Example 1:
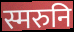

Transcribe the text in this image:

स्मरुनि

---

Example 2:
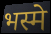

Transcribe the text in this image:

भस्मे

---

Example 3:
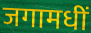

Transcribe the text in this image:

जगामधीं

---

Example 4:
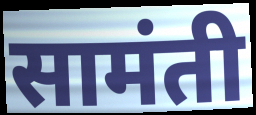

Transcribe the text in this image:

सामंती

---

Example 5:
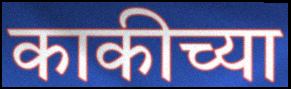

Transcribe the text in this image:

काकीच्या